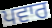
ਪਵਾਰ